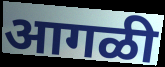
आगळी